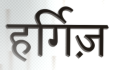
हर्गिज़